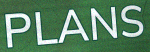
PLANS